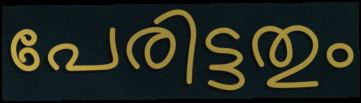
പേരിട്ടതും